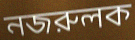
নজৰুলক